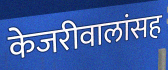
केजरीवालांसह